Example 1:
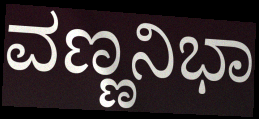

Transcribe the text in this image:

ವಣ್ಣನಿಭಾ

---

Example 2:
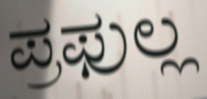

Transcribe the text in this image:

ಪ್ರಫುಲ್ಲ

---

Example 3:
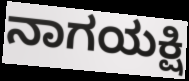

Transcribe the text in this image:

ನಾಗಯಕ್ಷಿ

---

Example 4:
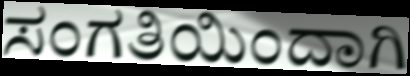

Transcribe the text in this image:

ಸಂಗತಿಯಿಂದಾಗಿ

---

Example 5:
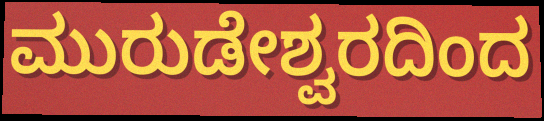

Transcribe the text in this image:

ಮುರುಡೇಶ್ವರದಿಂದ